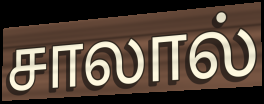
சாலால்